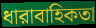
ধারাবাহিকতা